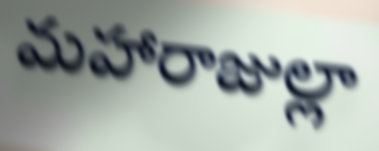
మహారాజుల్లా